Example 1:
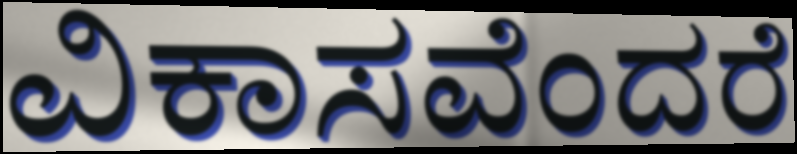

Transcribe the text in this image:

ವಿಕಾಸವೆಂದರೆ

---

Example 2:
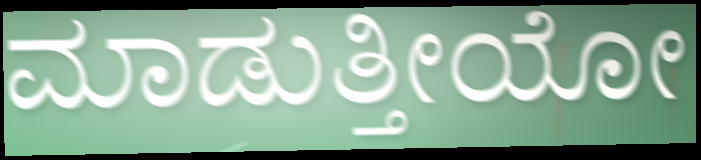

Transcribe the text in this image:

ಮಾಡುತ್ತೀಯೋ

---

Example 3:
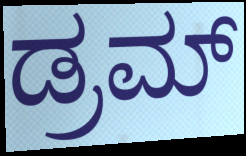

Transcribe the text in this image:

ಡ್ರಮ್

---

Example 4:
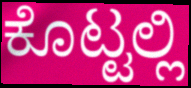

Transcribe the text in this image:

ಕೊಟ್ಟಲ್ಲಿ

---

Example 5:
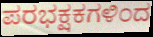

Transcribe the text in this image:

ಪರಭಕ್ಷಕಗಳಿಂದ